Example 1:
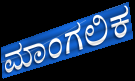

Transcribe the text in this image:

ಮಾಂಗಲಿಕ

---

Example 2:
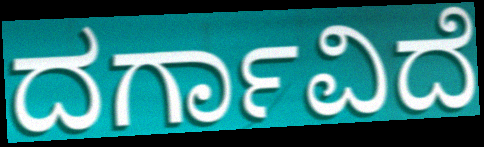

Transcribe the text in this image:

ದರ್ಗಾವಿದೆ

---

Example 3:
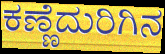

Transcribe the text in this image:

ಕಣ್ಣೆದುರಿಗಿನ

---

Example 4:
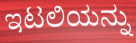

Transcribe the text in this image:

ಇಟಲಿಯನ್ನು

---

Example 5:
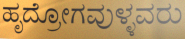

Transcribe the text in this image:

ಹೃದ್ರೋಗವುಳ್ಳವರು